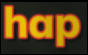
hap